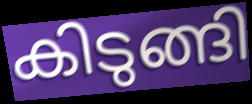
കിടുങ്ങി